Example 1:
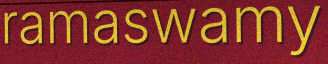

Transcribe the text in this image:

ramaswamy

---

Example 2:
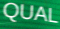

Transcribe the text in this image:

QUAL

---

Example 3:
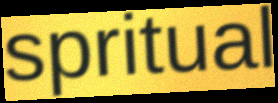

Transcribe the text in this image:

spritual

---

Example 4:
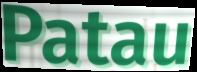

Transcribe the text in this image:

Patau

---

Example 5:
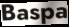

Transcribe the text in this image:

Baspa